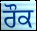
ਰੌਕ